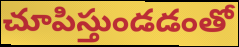
చూపిస్తుండడంతో